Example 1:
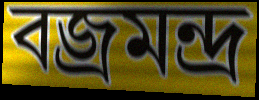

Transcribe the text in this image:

বজ্রমন্দ্র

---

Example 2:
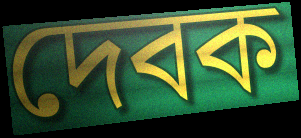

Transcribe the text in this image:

দেবক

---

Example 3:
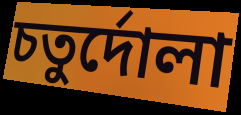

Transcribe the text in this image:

চতুর্দোলা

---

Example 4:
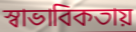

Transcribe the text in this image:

স্বাভাবিকতায়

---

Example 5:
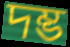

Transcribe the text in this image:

দম্ভ